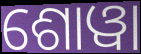
ଶୋୱା